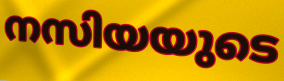
നസിയയുടെ